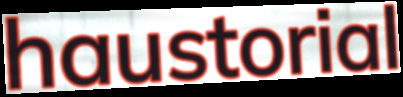
haustorial